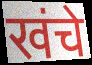
खंचे